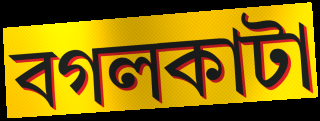
বগলকাটা